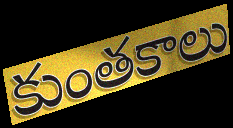
కుంతకాలు